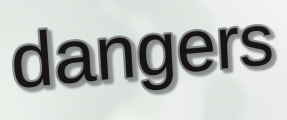
dangers